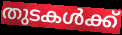
തുടകൾക്ക്